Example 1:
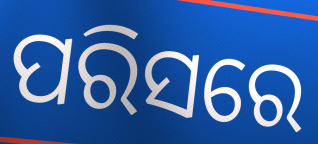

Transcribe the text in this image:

ପରିସରେ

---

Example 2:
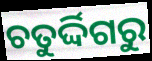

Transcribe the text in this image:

ଚତୁର୍ଦ୍ଦିଗରୁ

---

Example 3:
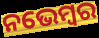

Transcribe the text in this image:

ନଭେମ୍ବର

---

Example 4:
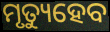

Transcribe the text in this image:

ମୃତ୍ୟୁହେବ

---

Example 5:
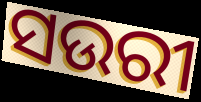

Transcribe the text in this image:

ସଉରୀ